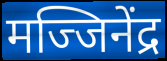
मज्जिनेंद्र